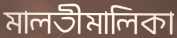
মালতীমালিকা